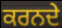
ਕਰਨਦੇ